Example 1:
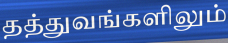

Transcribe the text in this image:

தத்துவங்களிலும்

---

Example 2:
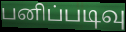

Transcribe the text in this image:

பனிப்படிவு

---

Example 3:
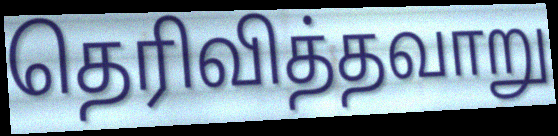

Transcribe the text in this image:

தெரிவித்தவாறு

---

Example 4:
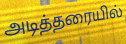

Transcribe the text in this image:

அடித்தரையில்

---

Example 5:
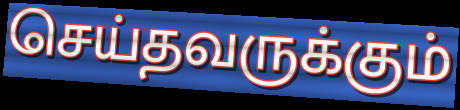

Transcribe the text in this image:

செய்தவருக்கும்